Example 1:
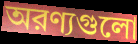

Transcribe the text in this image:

অরণ্যগুলো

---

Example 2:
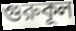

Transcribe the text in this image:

গুরুকূল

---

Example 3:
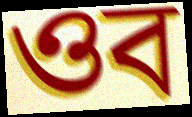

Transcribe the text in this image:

ওব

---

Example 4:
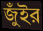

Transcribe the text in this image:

জুঁইর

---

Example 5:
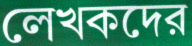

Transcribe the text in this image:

লেখকদের